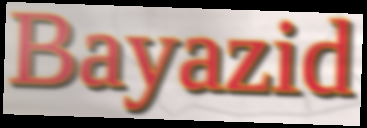
Bayazid